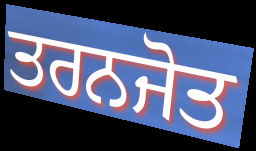
ਤਰਨਜੋਤ